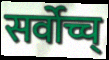
सर्वोच्च्